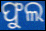
ଫୁଲ